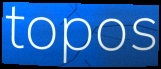
topos